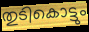
തുടികൊട്ടും